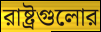
রাষ্ট্রগুলোর